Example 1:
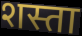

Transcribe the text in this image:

शस्ता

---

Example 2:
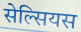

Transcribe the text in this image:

सेल्सियस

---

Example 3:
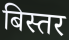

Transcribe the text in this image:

बिस्तर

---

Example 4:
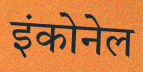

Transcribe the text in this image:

इंकोनेल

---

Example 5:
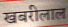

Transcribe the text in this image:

खबरीलाल